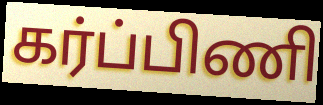
கர்ப்பிணி